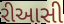
રીઆસી